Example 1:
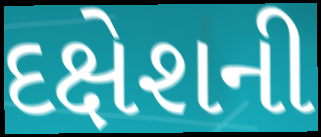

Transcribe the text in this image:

દક્ષેશની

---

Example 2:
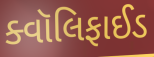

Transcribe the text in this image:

ક્વૉલિફાઈડ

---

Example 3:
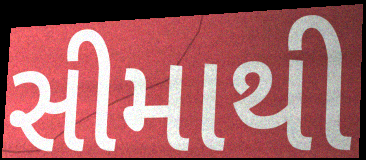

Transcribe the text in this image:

સીમાથી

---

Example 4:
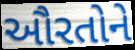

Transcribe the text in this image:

ઔરતોને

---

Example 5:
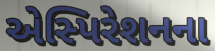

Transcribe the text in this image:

એસ્પિરેશનના